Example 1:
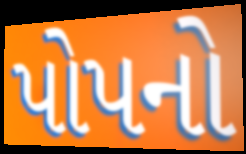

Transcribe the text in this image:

પોપનો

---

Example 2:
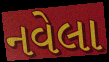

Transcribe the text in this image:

નવેલા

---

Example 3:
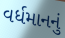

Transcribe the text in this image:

વર્ધમાનનું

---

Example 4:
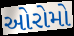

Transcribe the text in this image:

ઓરોમો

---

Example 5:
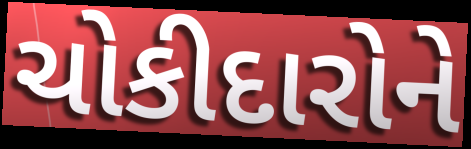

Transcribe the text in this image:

ચોકીદારોને